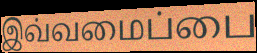
இவ்வமைப்பை